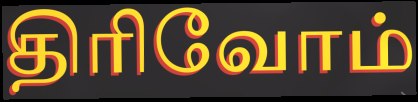
திரிவோம்